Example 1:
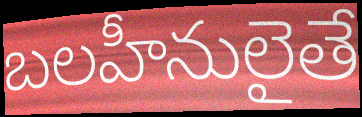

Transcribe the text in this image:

బలహీనులైతే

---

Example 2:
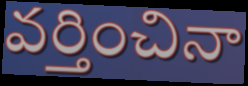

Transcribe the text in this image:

వర్తించినా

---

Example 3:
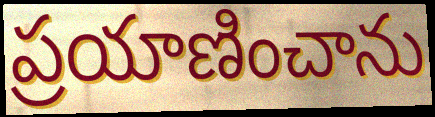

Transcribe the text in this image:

ప్రయాణించాను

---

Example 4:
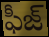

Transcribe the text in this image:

ఫీజ్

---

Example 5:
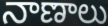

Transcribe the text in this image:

నాణాలు